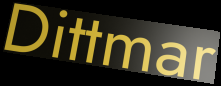
Dittmar